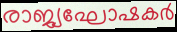
രാജ്യഘോഷകർ